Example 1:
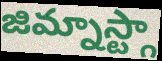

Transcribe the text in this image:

జిమ్నాస్ట్గా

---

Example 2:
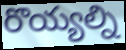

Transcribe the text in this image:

రొయ్యల్ని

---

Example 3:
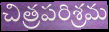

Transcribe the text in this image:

చిత్రపరిశ్రమ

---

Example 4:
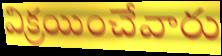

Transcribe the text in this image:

విక్రయించేవారు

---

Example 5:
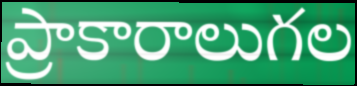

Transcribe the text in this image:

ప్రాకారాలుగల